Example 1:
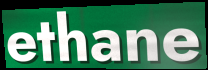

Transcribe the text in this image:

ethane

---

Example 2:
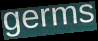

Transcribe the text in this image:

germs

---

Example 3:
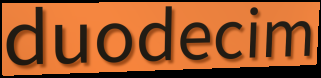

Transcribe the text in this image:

duodecim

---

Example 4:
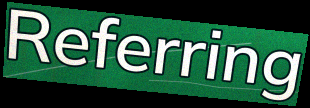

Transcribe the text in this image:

Referring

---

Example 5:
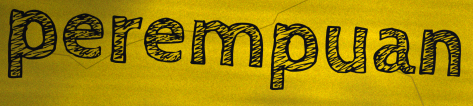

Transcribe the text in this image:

perempuan